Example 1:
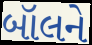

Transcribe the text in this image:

બૉલને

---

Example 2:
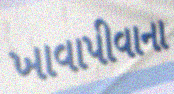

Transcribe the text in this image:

ખાવાપીવાના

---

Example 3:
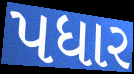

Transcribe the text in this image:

પધાર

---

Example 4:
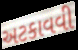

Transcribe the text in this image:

અટકાવવી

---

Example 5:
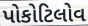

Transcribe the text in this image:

પોકોટિલોવ